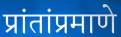
प्रांतांप्रमाणे